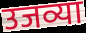
उजव्या